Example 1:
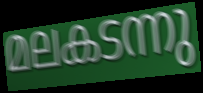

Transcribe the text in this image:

മലകടന്നു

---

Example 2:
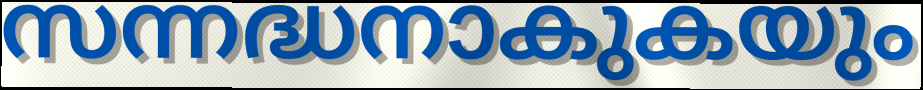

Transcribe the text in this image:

സന്നദ്ധനാകുകയും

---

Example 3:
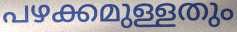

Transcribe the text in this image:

പഴക്കമുള്ളതും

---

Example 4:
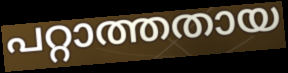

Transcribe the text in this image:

പറ്റാത്തതായ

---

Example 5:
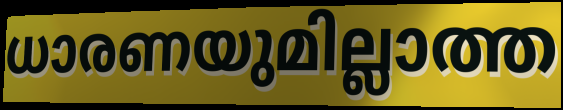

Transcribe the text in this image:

ധാരണയുമില്ലാത്ത